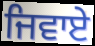
ਜਿਵਾਏ